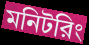
মনিটরিং